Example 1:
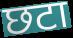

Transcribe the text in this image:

छटा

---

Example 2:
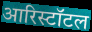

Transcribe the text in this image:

आरिस्टॉटल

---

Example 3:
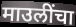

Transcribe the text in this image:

माउलींचा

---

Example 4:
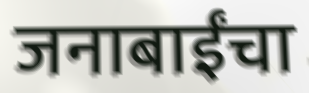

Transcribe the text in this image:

जनाबाईंचा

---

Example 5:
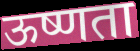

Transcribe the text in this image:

ऊष्णता